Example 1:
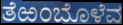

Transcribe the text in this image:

ತೆಱಂಬೊಳೆವ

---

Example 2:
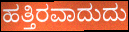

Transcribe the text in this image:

ಹತ್ತಿರವಾದುದು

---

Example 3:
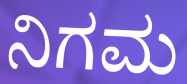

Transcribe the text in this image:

ನಿಗಮ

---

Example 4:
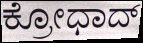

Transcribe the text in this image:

ಕ್ರೋಧಾದ್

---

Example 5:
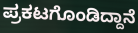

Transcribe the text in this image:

ಪ್ರಕಟಗೊಂಡಿದ್ದಾನೆ